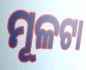
ମୂଳଟା